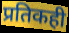
प्रतिकही